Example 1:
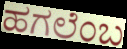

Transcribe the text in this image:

ಹಗಲೆಂಬ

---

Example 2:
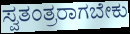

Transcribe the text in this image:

ಸ್ವತಂತ್ರರಾಗಬೇಕು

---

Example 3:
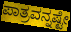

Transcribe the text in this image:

ಪಾತ್ರವನ್ನಷ್ಟೇ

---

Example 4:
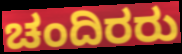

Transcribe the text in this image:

ಚಂದಿರರು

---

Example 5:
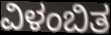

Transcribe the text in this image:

ವಿಳಂಬಿತ